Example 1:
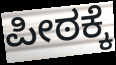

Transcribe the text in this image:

ಪೀಠಕ್ಕೆ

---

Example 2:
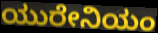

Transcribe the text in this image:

ಯುರೇನಿಯಂ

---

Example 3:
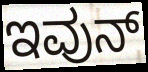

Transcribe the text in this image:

ಇವುನ್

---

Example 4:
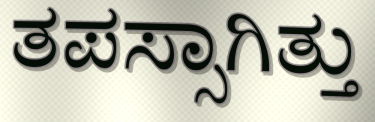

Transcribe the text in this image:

ತಪಸ್ಸಾಗಿತ್ತು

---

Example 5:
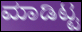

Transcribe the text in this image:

ಮಾಡಿಟ್ಟ